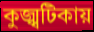
কুজ্ঝ্বটিকায়